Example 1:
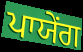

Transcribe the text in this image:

ਪਾਯੇਂਗ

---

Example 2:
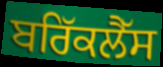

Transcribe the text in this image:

ਬਰਿੱਕਲੈੱਸ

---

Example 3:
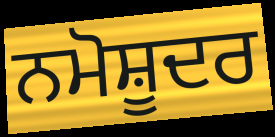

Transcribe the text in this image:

ਨਮੋਸ਼ੂਦਰ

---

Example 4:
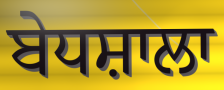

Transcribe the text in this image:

ਬੇਧਸ਼ਾਲਾ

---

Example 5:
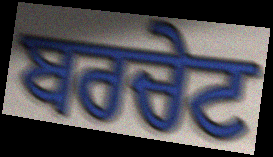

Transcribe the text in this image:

ਬਰਚੇਟ